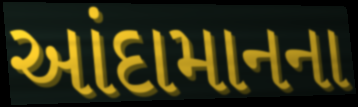
આંદામાનના